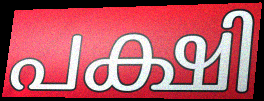
പക്ഷി